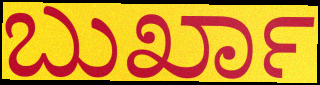
ಬುರ್ಖಾ